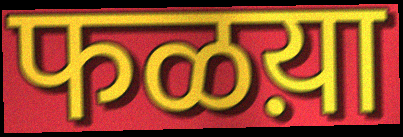
फळय़ा